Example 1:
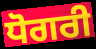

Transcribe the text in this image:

ਧੋਗਰੀ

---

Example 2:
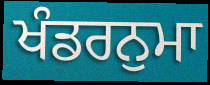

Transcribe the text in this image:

ਖੰਡਰਨੁਮਾ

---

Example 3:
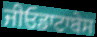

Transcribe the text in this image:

ਜੀਓਡਾਟਾਬੇਸ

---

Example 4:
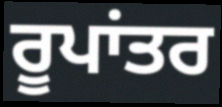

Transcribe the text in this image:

ਰੂਪਾਂਤਰ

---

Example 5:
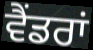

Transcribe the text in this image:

ਵੈਂਡਰਾਂ